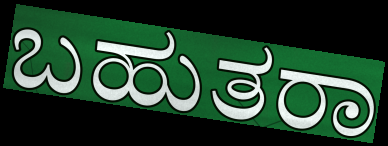
ಬಹುತರಾ